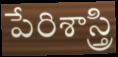
పేరిశాస్త్రి